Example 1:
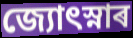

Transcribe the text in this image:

জ্যোৎস্নাৰ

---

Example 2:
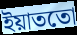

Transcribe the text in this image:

ইয়াততো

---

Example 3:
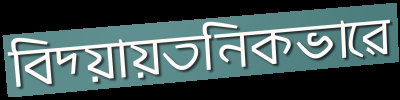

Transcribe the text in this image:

বিদ্য়ায়তনিকভাৱে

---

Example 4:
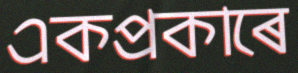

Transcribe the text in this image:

একপ্ৰকাৰে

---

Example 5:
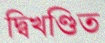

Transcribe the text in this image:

দ্বিখণ্ডিত